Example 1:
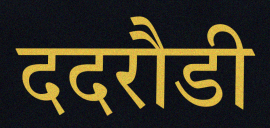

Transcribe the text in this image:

ददरौडी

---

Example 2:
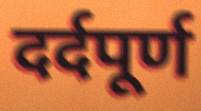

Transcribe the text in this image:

दर्दपूर्ण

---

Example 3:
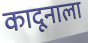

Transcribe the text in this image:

कादूनाला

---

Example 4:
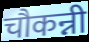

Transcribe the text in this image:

चौकन्नी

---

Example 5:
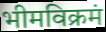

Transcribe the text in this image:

भीमविक्रमं